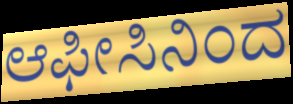
ಆಫೀಸಿನಿಂದ